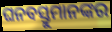
ଘନବସ୍ତୁମାନଙ୍କର